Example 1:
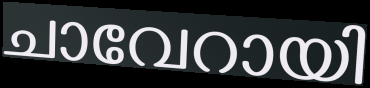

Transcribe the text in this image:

ചാവേറായി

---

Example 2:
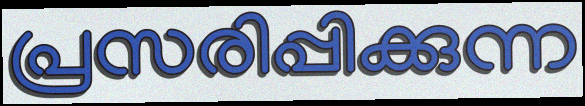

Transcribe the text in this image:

പ്രസരിപ്പിക്കുന്ന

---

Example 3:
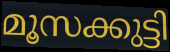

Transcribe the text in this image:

മൂസക്കുട്ടി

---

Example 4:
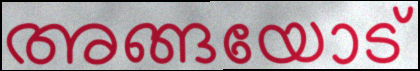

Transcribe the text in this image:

അങ്ങയോട്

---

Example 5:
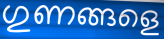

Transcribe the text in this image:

ഗുണങ്ങളെ